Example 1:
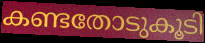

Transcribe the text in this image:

കണ്ടതോടുകൂടി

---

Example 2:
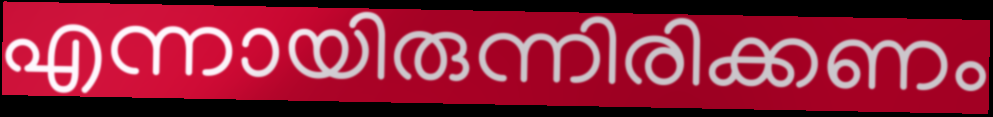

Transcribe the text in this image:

എന്നായിരുന്നിരിക്കണം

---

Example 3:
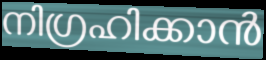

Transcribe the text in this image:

നിഗ്രഹിക്കാൻ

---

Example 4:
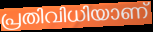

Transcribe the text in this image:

പ്രതിവിധിയാണ്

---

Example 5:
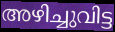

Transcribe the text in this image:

അഴിച്ചുവിട്ട